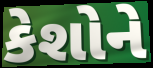
કેશોને